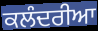
ਕਲੰਦਰੀਆ